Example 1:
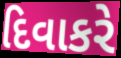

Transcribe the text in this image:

દિવાકરે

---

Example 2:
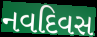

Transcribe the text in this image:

નવદિવસ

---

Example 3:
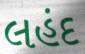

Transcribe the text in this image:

લહંદ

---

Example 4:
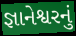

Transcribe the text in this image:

જ્ઞાનેશ્વરનું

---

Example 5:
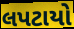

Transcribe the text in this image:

લપટાયો